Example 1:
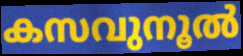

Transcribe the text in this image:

കസവുനൂൽ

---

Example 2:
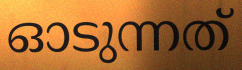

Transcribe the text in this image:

ഓടുന്നത്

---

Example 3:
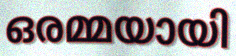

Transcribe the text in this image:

ഒരമ്മയായി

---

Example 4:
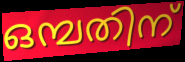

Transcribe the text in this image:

ഒമ്പതിന്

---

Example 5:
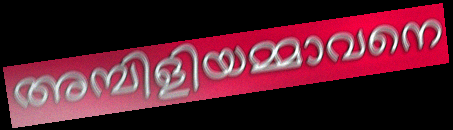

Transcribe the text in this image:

അമ്പിളിയമ്മാവനെ